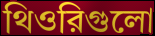
থিওরিগুলো